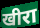
खीरा